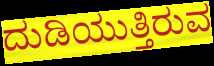
ದುಡಿಯುತ್ತಿರುವ